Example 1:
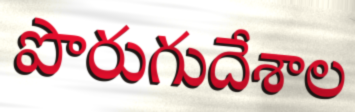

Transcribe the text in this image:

పొరుగుదేశాల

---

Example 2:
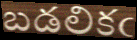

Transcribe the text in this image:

బడలికఁ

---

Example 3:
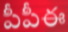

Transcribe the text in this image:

పీపీఈ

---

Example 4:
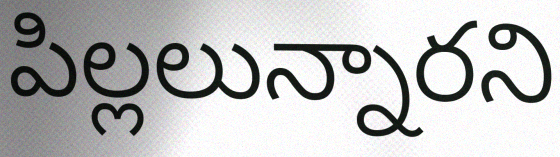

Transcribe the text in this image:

పిల్లలున్నారని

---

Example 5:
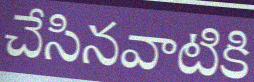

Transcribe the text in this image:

చేసినవాటికి